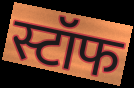
स्‍टॉफ